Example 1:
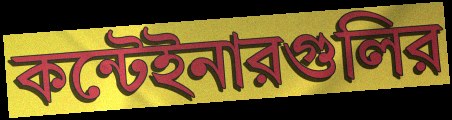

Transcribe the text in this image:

কন্টেইনারগুলির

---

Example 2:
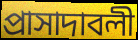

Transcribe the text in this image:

প্রাসাদাবলী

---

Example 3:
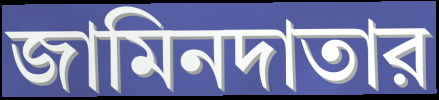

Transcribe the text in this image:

জামিনদাতার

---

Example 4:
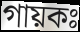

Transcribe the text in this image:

গায়কঃ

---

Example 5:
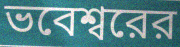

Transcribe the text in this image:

ভবেশ্বরের